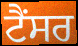
ਟੈਂਸਰ